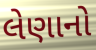
લેણાનો